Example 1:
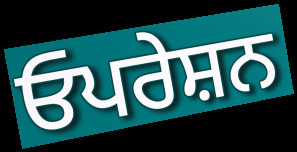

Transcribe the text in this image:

ਓਪਰੇਸ਼ਨ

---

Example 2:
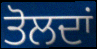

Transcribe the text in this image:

ਤੋਲਦਾਂ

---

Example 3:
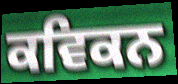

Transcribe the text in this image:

ਕਵਿਕਨ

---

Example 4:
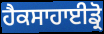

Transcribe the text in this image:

ਹੈਕਸਾਹਾਈਡ੍ਰੋ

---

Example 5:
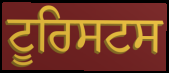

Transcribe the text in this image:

ਟੂਰਿਸਟਸ